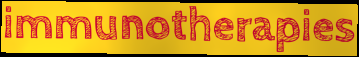
immunotherapies